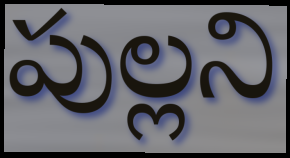
పుల్లని